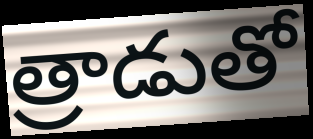
త్రాడుతో